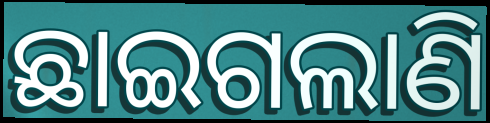
ଛାଇଗଲାଣି